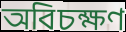
অবিচক্ষণ